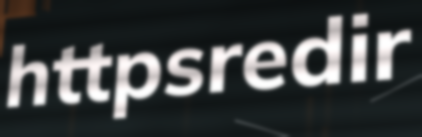
httpsredir